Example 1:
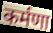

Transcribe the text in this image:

कर्मणा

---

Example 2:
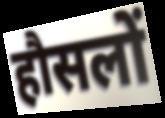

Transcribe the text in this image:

हौसलों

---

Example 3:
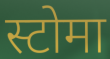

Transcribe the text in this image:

स्टोमा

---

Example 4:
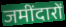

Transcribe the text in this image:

जमींदारों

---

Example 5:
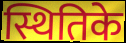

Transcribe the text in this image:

स्थितिके